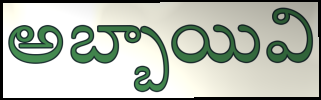
అబ్బాయివి